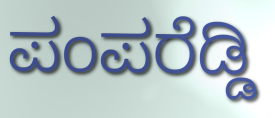
ಪಂಪರೆಡ್ಡಿ